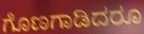
ಗೊಣಗಾಡಿದರೂ